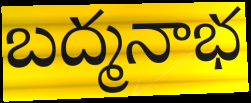
బద్మనాభ